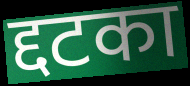
द्दटका